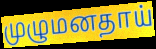
முழுமனதாய்